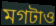
মগটাও